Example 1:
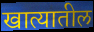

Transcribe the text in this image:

खात्यातील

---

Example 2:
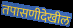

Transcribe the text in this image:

तपासणीदेखील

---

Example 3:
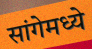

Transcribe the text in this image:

सांगेमध्ये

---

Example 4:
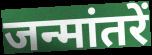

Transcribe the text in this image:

जन्मांतरें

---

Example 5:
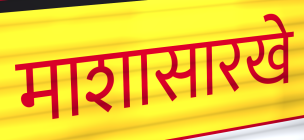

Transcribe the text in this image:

माशासारखे